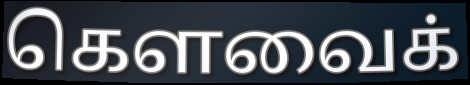
கௌவைக்